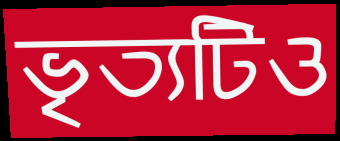
ভৃত্যটিও